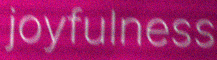
joyfulness